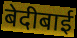
बेदीबाई